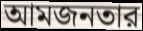
আমজনতার